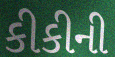
કીકીની